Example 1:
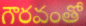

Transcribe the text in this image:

గౌరవంతో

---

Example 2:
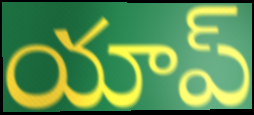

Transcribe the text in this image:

యాప్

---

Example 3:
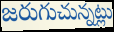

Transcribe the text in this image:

జరుగుచున్నట్లు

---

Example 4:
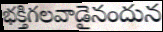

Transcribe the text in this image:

భక్తిగలవాడైనందున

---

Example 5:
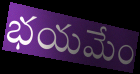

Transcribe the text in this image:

భయమేం